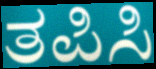
ತಪಿಸಿ